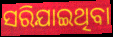
ସରିଯାଇଥିବା